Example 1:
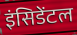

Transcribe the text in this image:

इंसिडेंटल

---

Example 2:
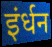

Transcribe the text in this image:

इंर्धन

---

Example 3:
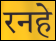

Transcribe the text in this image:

रनहे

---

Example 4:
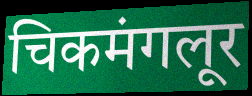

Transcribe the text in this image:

चिकमंगलूर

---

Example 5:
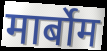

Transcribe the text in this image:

मार्बोम